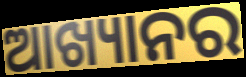
ଆଖ୍ୟାନର